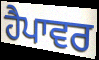
ਹੈਪਾਵਰ